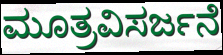
ಮೂತ್ರವಿಸರ್ಜನೆ